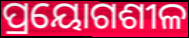
ପ୍ରୟୋଗଶୀଳ